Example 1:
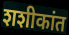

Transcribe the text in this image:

शशीकांत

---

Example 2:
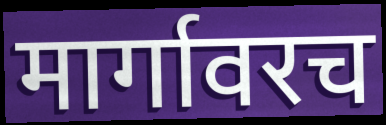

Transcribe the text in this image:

मार्गावरच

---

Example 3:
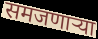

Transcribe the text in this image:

समजणाऱ्या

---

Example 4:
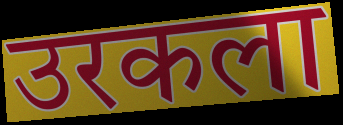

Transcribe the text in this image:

उरकला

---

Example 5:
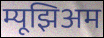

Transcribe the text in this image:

म्यूझिअम